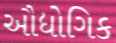
ઔદ્યોગિક